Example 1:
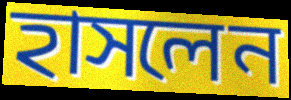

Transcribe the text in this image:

হাসলেন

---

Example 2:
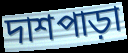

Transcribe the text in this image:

দাশপাড়া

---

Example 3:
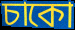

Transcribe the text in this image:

চাকো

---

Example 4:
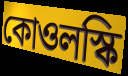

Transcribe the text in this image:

কোওলস্কি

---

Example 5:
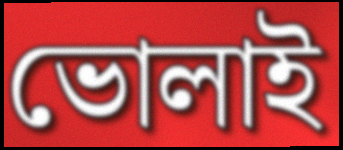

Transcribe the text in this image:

ভোলাই